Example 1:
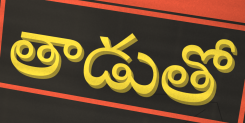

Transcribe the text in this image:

తాడుతో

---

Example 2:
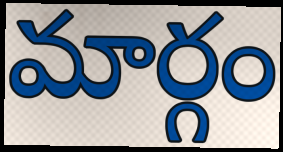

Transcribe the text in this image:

మార్గం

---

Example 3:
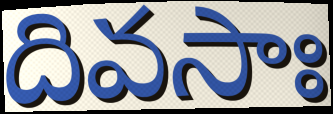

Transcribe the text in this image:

దివసాః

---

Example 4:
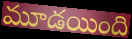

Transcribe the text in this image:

మూడయింది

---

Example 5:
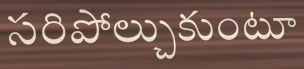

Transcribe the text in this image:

సరిపోల్చుకుంటూ